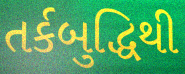
તર્કબુદ્ધિથી